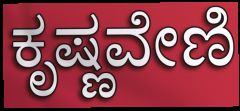
ಕೃಷ್ಣವೇಣಿ